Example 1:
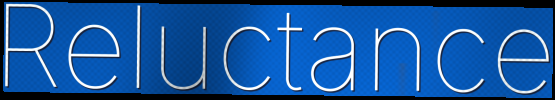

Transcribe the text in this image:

Reluctance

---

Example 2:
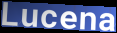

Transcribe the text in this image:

Lucena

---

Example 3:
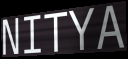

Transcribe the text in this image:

NITYA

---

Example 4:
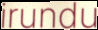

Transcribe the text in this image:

irundu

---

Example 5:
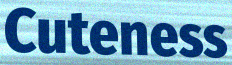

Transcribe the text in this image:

Cuteness